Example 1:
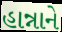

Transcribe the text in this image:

હાન્નાને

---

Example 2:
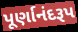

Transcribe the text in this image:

પૂર્ણાનંદરૂપ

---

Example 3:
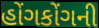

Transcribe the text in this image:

હોંગકોંગની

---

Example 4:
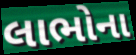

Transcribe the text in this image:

લાભોના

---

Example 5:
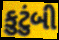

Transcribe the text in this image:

કુટુંબી